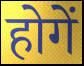
होगें